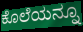
ಕೊಲೆಯನ್ನೂ